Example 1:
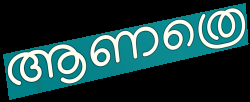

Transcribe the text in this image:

ആണത്രെ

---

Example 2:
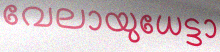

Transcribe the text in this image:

വേലായുധേട്ടാ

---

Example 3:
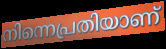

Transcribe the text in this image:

നിന്നെപ്രതിയാണ്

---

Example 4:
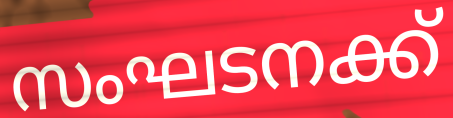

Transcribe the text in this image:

സംഘടനക്ക്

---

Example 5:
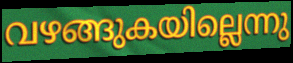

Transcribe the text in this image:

വഴങ്ങുകയില്ലെന്നു